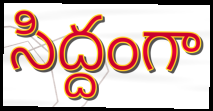
సిద్దంగా